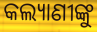
କଲ୍ୟାଣୀଙ୍କୁ